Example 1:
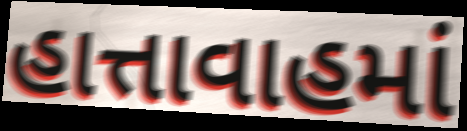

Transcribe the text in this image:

હાત્તાવાહમાં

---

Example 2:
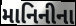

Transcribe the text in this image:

માનિનીના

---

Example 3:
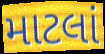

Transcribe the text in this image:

માટલાં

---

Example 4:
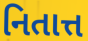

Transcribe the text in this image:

નિતાત્ત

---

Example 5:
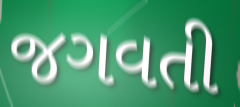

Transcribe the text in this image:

જગવતી